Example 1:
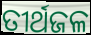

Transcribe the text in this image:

ତୀର୍ଥଜଳ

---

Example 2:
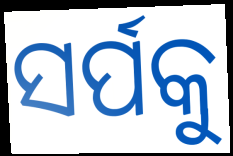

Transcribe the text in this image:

ସର୍ପକୁ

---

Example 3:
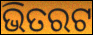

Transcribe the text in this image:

ଭିତରଟ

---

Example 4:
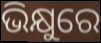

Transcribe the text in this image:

ଭିକ୍ଷୁରେ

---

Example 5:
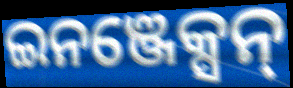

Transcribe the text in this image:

ଇନଞ୍ଜେକ୍ସନ୍